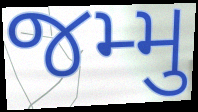
જમ્મુ